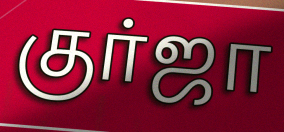
குர்ஜா